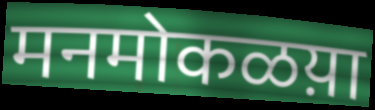
मनमोकळय़ा